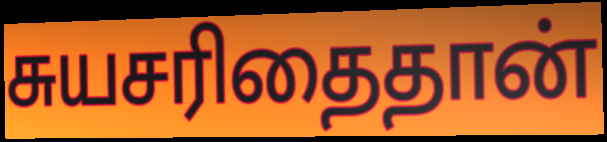
சுயசரிதைதான்